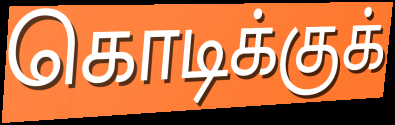
கொடிக்குக்